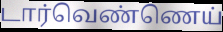
டார்வெண்ணெய்